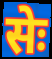
सेः